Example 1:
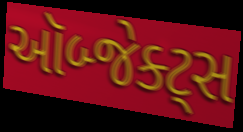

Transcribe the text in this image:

ઑબ્જેક્ટ્સ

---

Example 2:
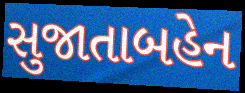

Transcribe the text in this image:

સુજાતાબહેન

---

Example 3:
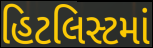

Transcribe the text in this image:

હિટલિસ્ટમાં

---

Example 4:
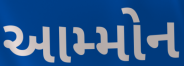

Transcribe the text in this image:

આમ્મોન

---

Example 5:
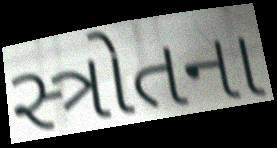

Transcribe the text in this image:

સ્ત્રોતના